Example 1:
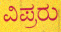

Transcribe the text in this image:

ವಿಪ್ರರು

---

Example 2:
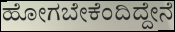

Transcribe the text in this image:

ಹೋಗಬೇಕೆಂದಿದ್ದೇನೆ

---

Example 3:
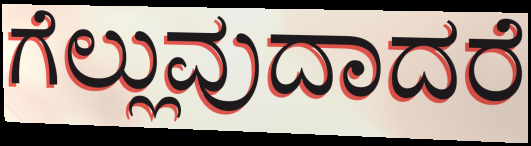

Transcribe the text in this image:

ಗೆಲ್ಲುವುದಾದರೆ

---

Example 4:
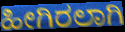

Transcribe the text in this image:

ಹೀಗಿರಲಾಗಿ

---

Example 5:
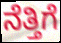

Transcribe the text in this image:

ನೆತ್ತಿಗೆ